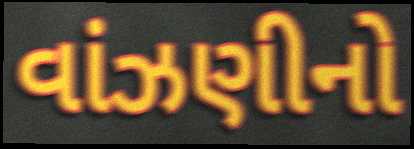
વાંઝણીનો